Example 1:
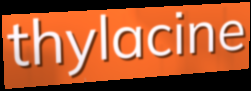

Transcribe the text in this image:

thylacine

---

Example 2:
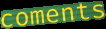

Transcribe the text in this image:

coments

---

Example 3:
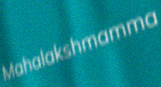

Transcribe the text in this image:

Mahalakshmamma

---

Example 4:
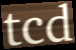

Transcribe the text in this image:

tcd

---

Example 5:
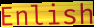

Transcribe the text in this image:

Enlish